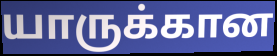
யாருக்கான